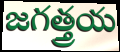
జగత్త్రయ